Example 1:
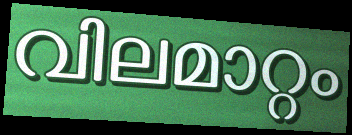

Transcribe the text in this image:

വിലമാറ്റം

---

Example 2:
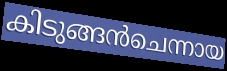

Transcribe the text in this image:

കിടുങ്ങൻചെന്നായ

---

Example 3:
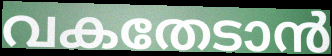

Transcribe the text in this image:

വകതേടാൻ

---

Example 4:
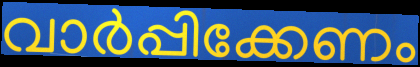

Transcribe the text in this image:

വാർപ്പിക്കേണം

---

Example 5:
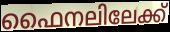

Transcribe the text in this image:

ഫൈനലിലേക്ക്